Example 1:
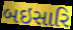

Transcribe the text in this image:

બઇસારિ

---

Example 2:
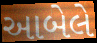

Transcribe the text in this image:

આબેલે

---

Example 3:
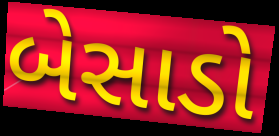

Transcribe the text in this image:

બેસાડો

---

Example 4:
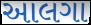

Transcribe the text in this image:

આલગા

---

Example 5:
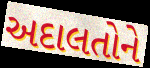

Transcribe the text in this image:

અદાલતોને